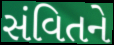
સંવિતને